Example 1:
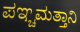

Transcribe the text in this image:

ಪಞ್ಚಮತ್ತಾನಿ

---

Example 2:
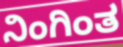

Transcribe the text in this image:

ನಿಂಗಿಂತ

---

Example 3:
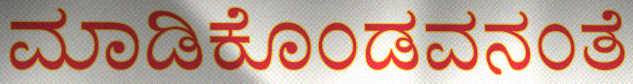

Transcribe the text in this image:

ಮಾಡಿಕೊಂಡವನಂತೆ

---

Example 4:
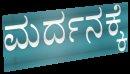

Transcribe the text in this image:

ಮರ್ದನಕ್ಕೆ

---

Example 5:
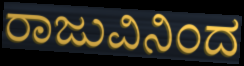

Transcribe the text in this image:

ರಾಜುವಿನಿಂದ